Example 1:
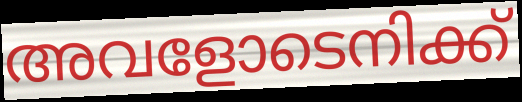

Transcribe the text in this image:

അവളോടെനിക്ക്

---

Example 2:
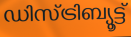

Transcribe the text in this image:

ഡിസ്ട്രിബ്യൂട്ട്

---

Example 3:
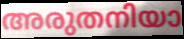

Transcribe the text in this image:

അരുതനിയാ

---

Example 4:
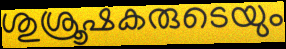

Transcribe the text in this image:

ശുശ്രൂഷകരുടെയും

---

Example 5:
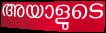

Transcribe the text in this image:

അയാളുടെ